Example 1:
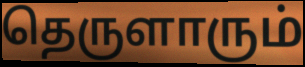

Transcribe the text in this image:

தெருளாரும்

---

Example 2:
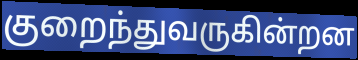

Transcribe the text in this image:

குறைந்துவருகின்றன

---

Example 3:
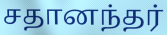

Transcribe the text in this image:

சதானந்தர்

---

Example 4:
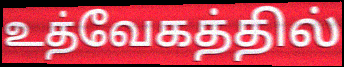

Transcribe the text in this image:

உத்வேகத்தில்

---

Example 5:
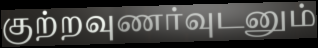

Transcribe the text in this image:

குற்றவுணர்வுடனும்